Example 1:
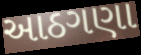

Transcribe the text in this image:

આઠગણા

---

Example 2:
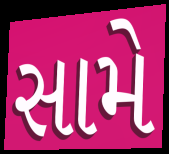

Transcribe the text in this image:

સામે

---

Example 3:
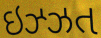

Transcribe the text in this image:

ઇઝ્ઝત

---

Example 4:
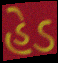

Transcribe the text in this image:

હેડ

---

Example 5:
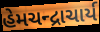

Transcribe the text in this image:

હેમચન્દ્રાચાર્ય